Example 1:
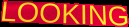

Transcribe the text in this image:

LOOKING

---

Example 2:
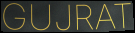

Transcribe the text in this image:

GUJRAT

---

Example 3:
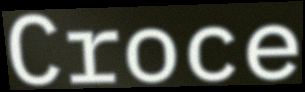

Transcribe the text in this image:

Croce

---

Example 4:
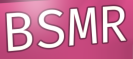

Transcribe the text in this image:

BSMR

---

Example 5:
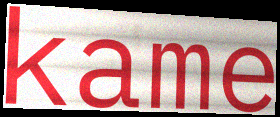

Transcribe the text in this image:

kame